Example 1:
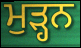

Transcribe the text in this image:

ਮੁੜ੍ਹਨ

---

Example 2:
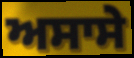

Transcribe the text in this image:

ਅਸਾਸੇ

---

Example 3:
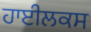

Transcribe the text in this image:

ਹਾਈਲਕਸ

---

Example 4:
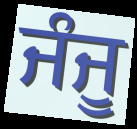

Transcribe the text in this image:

ਜੰਜੂ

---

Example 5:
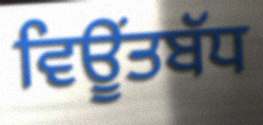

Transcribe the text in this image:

ਵਿਊਂਤਬੱਧ